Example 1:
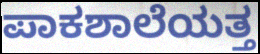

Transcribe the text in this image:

ಪಾಕಶಾಲೆಯತ್ತ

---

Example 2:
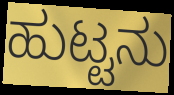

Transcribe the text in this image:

ಹುಟ್ಟನು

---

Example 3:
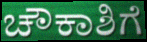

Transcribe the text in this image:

ಚೌಕಾಶಿಗೆ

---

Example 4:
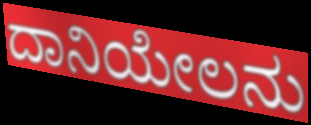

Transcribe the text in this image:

ದಾನಿಯೇಲನು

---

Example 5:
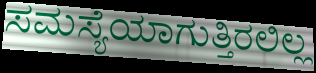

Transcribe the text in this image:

ಸಮಸ್ಯೆಯಾಗುತ್ತಿರಲಿಲ್ಲ